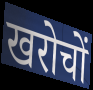
खरोचों